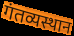
गंतव्यस्थान